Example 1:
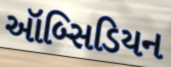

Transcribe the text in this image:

ઑબ્સિડિયન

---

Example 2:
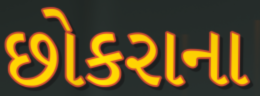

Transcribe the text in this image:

છોકરાના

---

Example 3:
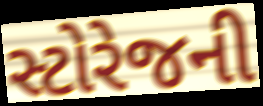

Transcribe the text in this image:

સ્ટોરેજની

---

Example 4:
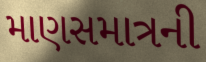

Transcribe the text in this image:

માણસમાત્રની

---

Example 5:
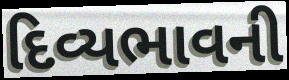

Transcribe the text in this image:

દિવ્યભાવની